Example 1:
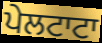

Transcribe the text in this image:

ਪੇਲਟਾਟਾ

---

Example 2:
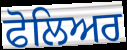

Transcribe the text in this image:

ਫੋਲਿਅਰ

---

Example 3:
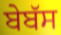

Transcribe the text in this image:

ਬੇਬੱਸ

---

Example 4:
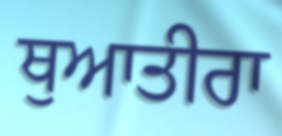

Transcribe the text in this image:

ਥੁਆਤੀਰਾ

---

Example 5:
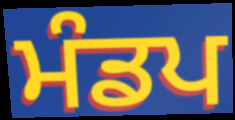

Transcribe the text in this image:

ਮੰਡਪ